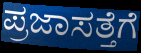
ಪ್ರಜಾಸತ್ತೆಗೆ